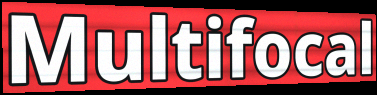
Multifocal